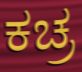
ಕಚ್ರ